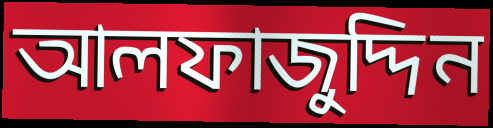
আলফাজুদ্দিন